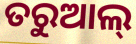
ତରୁଆଲ୍